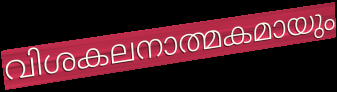
വിശകലനാത്മകമായും